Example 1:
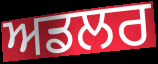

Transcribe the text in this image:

ਅਡਲਰ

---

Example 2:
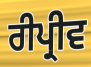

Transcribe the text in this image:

ਰੀਪ੍ਰੀਵ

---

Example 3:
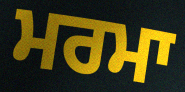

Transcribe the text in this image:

ਮਰਮਾ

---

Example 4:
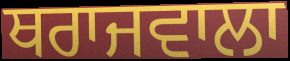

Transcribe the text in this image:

ਥਰਾਜਵਾਲਾ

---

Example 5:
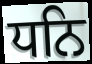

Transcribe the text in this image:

ਧਨਿ